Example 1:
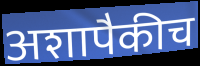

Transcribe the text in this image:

अशापैकीच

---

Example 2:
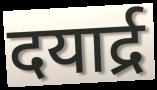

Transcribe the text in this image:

दयार्द्र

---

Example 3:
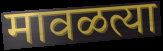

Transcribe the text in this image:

मावळत्या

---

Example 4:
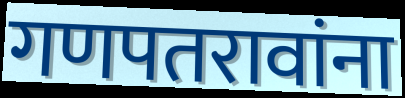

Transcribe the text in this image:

गणपतरावांना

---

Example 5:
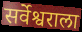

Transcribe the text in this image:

सर्वेश्वराला